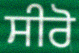
ਸੀਰੋ